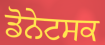
ਡੋਨੇਟਸਕ